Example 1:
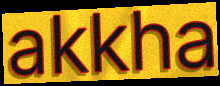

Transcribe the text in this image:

akkha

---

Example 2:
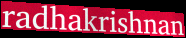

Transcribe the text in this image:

radhakrishnan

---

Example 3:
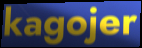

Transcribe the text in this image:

kagojer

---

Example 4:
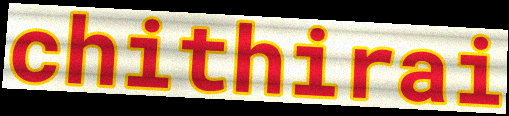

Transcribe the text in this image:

chithirai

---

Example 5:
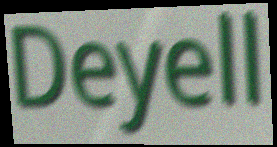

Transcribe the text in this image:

Deyell